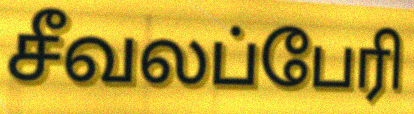
சீவலப்பேரி